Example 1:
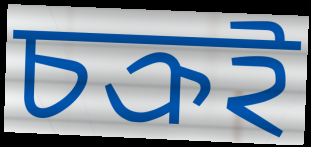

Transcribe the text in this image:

চক্ৰই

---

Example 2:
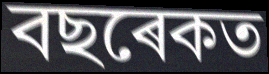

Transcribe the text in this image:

বছৰেকত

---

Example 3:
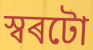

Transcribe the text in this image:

স্বৰটো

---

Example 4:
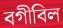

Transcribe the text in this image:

বগীবিল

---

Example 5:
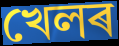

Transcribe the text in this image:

খেলৰ